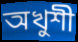
অখুশী